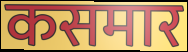
कसमार